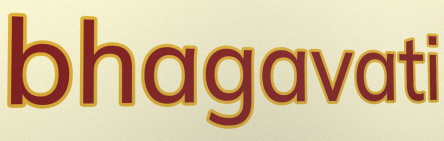
bhagavati